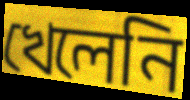
খেলেনি